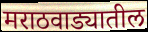
मराठवाड्यातील